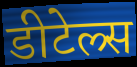
डीटेल्स